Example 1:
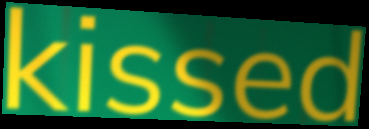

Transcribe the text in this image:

kissed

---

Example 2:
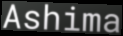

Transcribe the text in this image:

Ashima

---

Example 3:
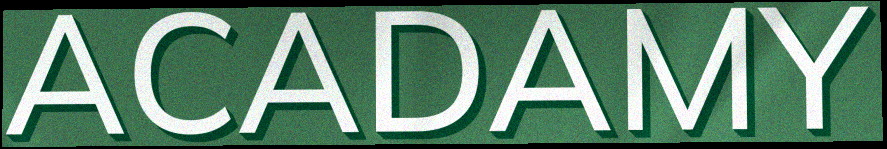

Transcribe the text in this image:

ACADAMY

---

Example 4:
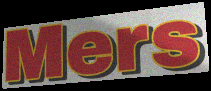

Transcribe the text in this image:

Mers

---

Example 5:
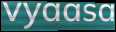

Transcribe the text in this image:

vyaasa